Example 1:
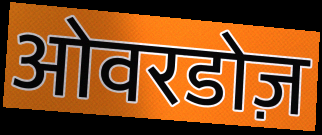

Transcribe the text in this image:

ओवरडोज़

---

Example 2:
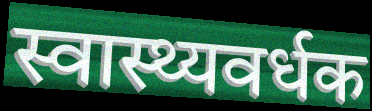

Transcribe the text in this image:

स्वास्थ्यवर्धक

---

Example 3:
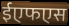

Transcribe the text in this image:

ईएफएस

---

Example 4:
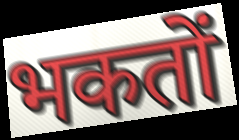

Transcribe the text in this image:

भकतों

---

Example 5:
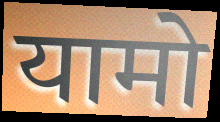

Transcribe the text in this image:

यामो